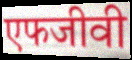
एफजीवी